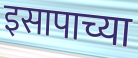
इसापाच्या